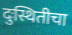
दुःस्थितीचा